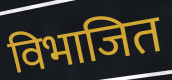
विभाजित